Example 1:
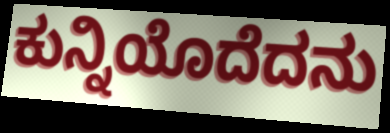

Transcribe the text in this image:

ಕುನ್ನಿಯೊದೆದನು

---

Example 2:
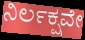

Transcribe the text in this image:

ನಿರ್ಲಕ್ಷವೇ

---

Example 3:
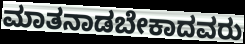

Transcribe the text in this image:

ಮಾತನಾಡಬೇಕಾದವರು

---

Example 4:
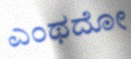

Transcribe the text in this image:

ಎಂಥದೋ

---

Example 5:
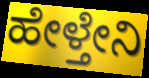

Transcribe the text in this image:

ಹೇಳ್ತೇನಿ